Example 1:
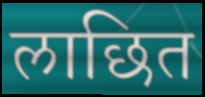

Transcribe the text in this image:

लाछित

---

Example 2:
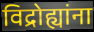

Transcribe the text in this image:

विद्रोह्यांना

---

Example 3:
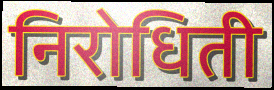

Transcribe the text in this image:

निरोधिती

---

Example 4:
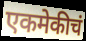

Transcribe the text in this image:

एकमेकीचं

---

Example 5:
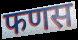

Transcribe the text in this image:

फणस